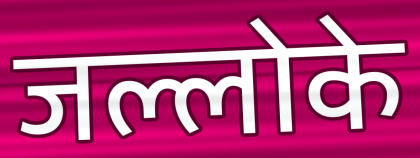
जल्लोके